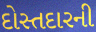
દોસ્તદારની